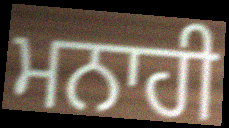
ਮਨਾਹੀ